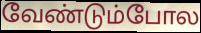
வேண்டும்போல